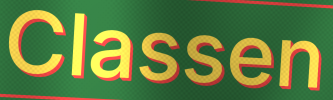
Classen